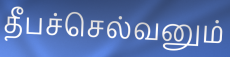
தீபச்செல்வனும்